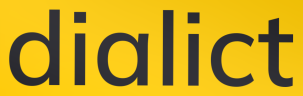
dialict